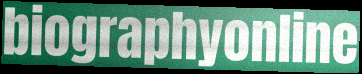
biographyonline